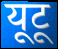
यूटू